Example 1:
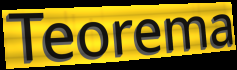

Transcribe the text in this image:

Teorema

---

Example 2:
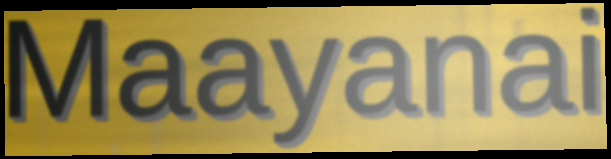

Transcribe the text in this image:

Maayanai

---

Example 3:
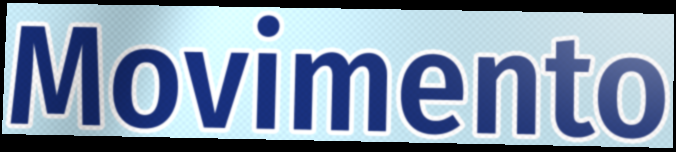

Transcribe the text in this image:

Movimento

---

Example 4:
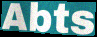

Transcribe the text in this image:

Abts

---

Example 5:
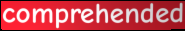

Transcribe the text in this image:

comprehended